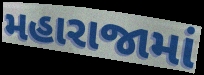
મહારાજામાં